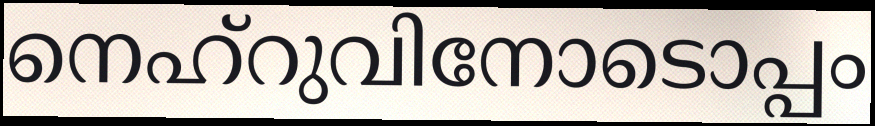
നെഹ്റുവിനോടൊപ്പം